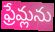
ఫ్రేమ్లను